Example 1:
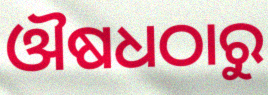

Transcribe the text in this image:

ଔଷଧଠାରୁ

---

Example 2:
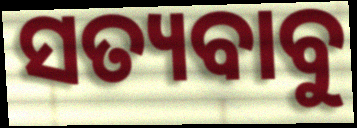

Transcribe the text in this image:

ସତ୍ୟବାବୁ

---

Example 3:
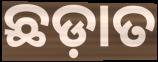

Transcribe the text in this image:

ଛଡ଼ାତ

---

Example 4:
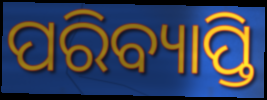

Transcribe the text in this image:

ପରିବ୍ୟାପ୍ତି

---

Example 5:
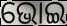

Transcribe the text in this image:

ଭୋଇ